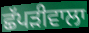
ਛੱਪੜੀਵਾਲਾ